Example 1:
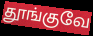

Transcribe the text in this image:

தூங்குவே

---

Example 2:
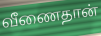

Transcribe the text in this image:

வீணைதான்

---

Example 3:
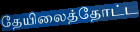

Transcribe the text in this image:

தேயிலைத்தோட்ட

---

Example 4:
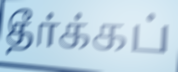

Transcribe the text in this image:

தீர்க்கப்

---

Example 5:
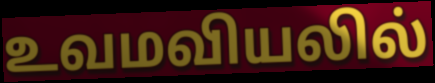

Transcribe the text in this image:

உவமவியலில்